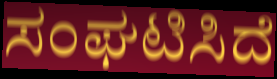
ಸಂಘಟಿಸಿದೆ